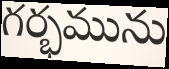
గర్భమును